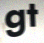
gt